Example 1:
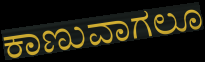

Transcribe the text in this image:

ಕಾಣುವಾಗಲೂ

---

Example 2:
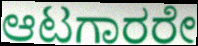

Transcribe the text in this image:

ಆಟಗಾರರೇ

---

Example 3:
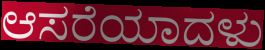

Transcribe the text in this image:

ಆಸರೆಯಾದಳು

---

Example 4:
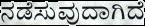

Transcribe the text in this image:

ನಡೆಸುವುದಾಗಿದೆ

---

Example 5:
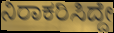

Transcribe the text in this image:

ನಿರಾಕರಿಸಿದ್ದೇ